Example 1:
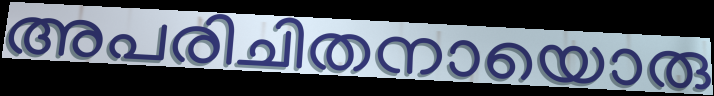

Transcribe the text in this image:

അപരിചിതനായൊരു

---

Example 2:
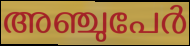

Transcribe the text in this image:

അഞ്ചുപേർ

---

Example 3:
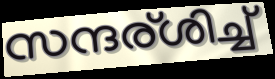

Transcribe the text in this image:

സന്ദര്ശിച്ച്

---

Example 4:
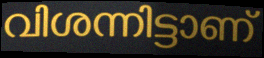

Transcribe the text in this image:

വിശന്നിട്ടാണ്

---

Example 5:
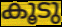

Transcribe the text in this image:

കൂടു